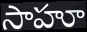
సాహూ